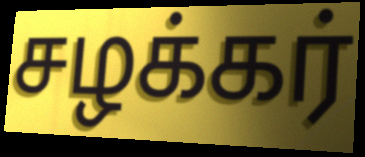
சழக்கர்